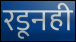
रडूनही